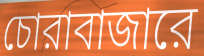
চোরাবাজারে